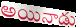
అయినాడు